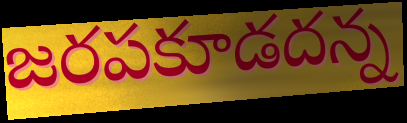
జరపకూడదన్న